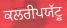
ਕਲਰੀਪਯੱਟੂ